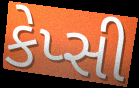
કેપ્સી